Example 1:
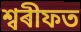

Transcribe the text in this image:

শ্বৰীফত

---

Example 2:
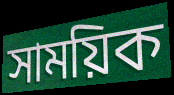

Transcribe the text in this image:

সাময়িক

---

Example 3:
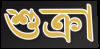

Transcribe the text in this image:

শুক্ৰা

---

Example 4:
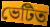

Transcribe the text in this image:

ভেটিত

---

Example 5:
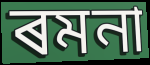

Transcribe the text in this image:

ৰমনা